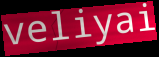
veliyai